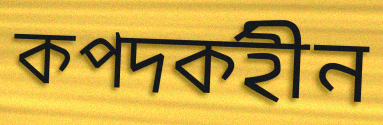
কপদর্কহীন